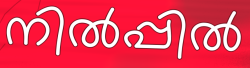
നിൽപ്പിൽ